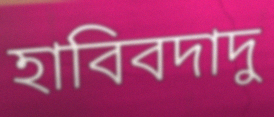
হাবিবদাদু